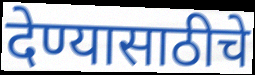
देण्यासाठीचे